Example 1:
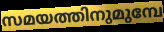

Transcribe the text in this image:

സമയത്തിനുമുമ്പേ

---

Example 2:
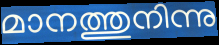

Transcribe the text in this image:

മാനത്തുനിന്നു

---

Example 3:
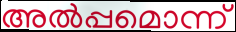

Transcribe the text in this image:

അൽപ്പമൊന്ന്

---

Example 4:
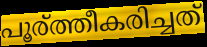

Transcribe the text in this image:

പൂര്ത്തീകരിച്ചത്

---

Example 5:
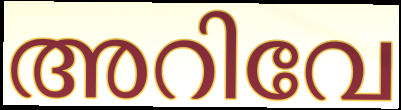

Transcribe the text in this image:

അറിവേ